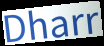
Dharr